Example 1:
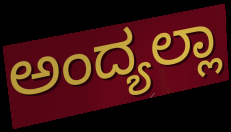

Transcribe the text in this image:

ಅಂದ್ಯಲ್ಲಾ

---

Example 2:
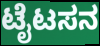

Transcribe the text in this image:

ಟೈಟಸನ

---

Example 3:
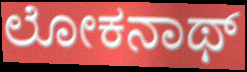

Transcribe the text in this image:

ಲೋಕನಾಥ್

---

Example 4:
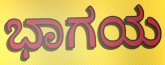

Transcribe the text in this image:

ಭಾಗಯ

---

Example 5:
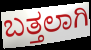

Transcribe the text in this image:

ಬತ್ತಲಾಗಿ